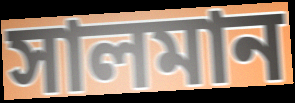
সালমান